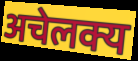
अचेलक्य